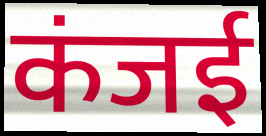
कंजई